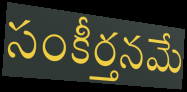
సంకీర్తనమే